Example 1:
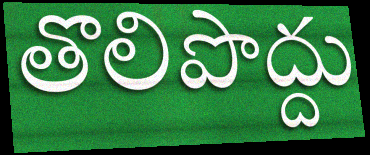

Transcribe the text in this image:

తొలిపొద్దు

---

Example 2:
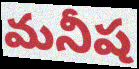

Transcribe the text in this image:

మనీష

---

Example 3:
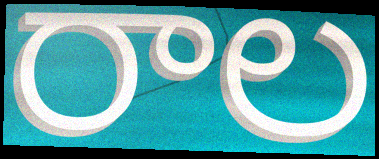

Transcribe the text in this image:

రాల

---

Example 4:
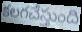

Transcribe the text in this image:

కలగచేస్తుంది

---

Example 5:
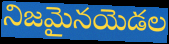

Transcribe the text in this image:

నిజమైనయెడల